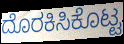
ದೊರಕಿಸಿಕೊಟ್ಟ